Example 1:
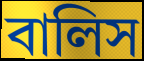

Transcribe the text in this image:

বালিস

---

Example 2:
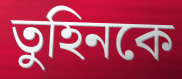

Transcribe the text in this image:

তুহিনকে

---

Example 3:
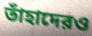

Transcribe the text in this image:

তাঁহাদেরও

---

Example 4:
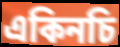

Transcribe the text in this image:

একিনচি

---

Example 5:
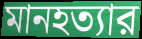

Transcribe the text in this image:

মানহত্যার